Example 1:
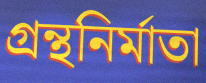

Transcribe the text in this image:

গ্রন্থনির্মাতা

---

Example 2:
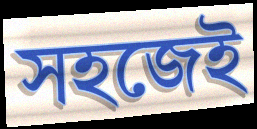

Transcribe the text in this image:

সহজেই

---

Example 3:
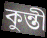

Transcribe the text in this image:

কুন্তী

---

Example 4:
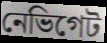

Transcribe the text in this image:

নেভিগেট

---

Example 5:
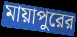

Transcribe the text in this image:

মায়াপুরের